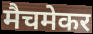
मैचमेकर